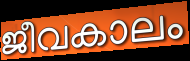
ജീവകാലം